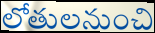
లోతులనుంచి